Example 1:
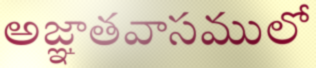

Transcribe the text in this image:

అజ్ఞాతవాసములో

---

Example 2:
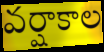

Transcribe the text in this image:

వర్షాకాల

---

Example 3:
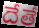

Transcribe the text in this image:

దేతే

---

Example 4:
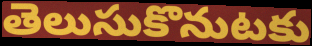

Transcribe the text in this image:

తెలుసుకొనుటకు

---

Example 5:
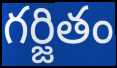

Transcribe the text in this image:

గర్జితం